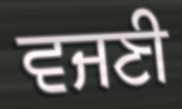
ਵਜਣੀ